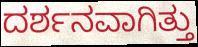
ದರ್ಶನವಾಗಿತ್ತು